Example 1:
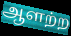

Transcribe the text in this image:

ஆளற்ற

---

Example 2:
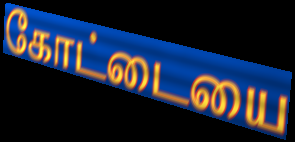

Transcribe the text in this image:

கோட்டையை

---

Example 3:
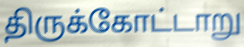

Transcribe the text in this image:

திருக்கோட்டாறு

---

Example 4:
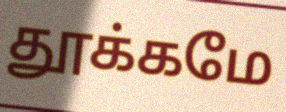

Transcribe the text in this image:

தூக்கமே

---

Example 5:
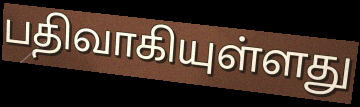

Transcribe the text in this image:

பதிவாகியுள்ளது